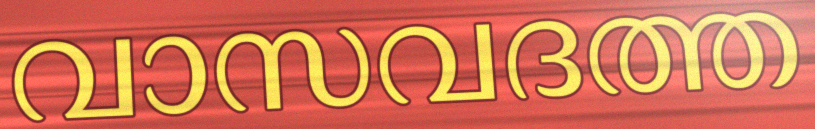
വാസവദത്ത